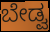
ಬೇಡ್ವ